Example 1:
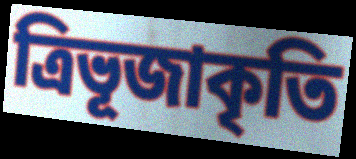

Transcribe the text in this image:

ত্রিভূজাকৃতি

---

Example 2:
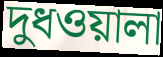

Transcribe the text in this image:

দুধওয়ালা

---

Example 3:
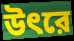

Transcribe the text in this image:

উৎরে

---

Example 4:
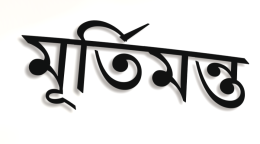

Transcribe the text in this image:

মূর্তিমন্ত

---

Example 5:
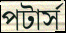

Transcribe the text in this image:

পটার্স